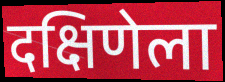
दक्षिणेला